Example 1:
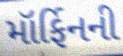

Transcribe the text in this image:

મૉર્ફિનની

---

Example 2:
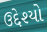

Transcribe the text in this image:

ઉદ્દેશ્યો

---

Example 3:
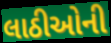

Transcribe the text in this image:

લાઠીઓની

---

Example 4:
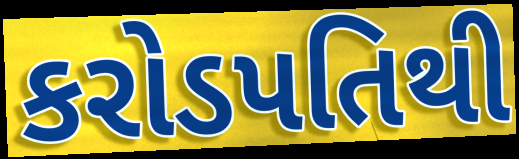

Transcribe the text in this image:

કરોડપતિથી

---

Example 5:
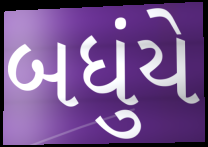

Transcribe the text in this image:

બધુંયે